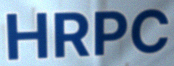
HRPC